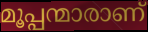
മൂപ്പന്മാരാണ്